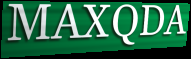
MAXQDA